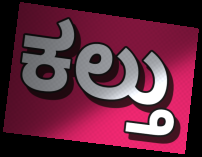
ಕಲ್ತು